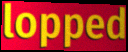
lopped